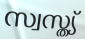
സ്വസ്ത്യ്